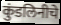
कुंडलिनीचे